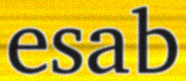
esab